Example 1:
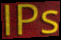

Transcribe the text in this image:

IPs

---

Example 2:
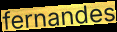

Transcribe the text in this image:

fernandes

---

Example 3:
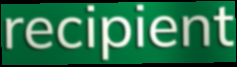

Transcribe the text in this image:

recipient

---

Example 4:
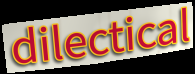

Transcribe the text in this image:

dilectical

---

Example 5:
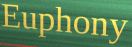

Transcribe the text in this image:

Euphony